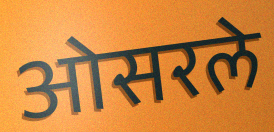
ओसरले